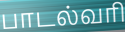
பாடல்வரி